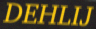
DEHLIJ